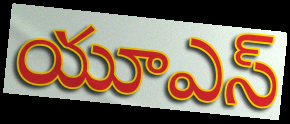
యూఎస్